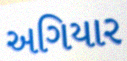
અગિયાર